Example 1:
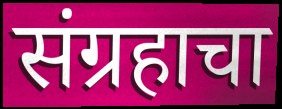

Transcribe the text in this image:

संग्रहाचा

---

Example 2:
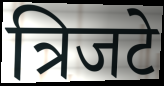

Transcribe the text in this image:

त्रिजटे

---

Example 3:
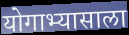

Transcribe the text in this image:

योगाभ्यासाला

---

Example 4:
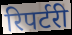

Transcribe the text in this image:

रिपर्टरी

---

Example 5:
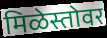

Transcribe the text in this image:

मिळेस्तोवर